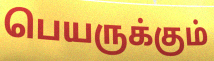
பெயருக்கும்